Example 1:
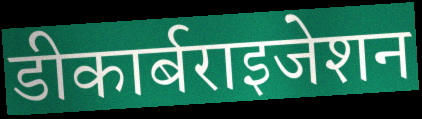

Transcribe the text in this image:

डीकार्बराइजेशन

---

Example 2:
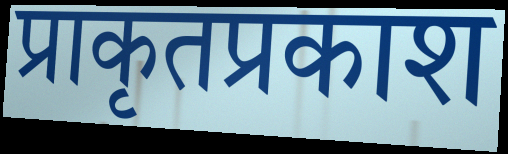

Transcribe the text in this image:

प्राकृतप्रकाश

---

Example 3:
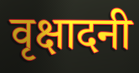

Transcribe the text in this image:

वृक्षादनी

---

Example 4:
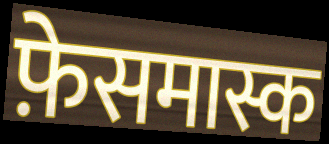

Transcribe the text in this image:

फ़ेसमास्क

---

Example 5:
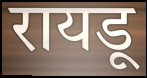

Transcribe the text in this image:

रायडू